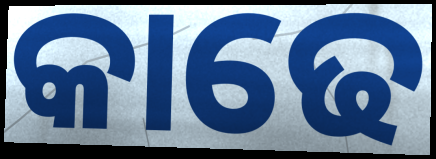
କାଢେ